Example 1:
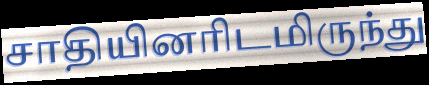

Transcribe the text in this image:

சாதியினரிடமிருந்து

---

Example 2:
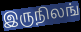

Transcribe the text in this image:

இருநிலங்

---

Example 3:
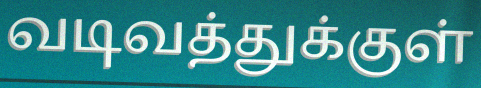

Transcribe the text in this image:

வடிவத்துக்குள்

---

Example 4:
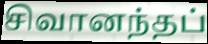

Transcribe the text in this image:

சிவானந்தப்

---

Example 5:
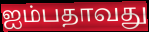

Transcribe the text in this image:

ஐம்பதாவது